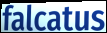
falcatus